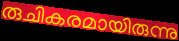
രുചികരമായിരുന്നു